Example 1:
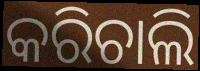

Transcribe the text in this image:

କରିଚାଲି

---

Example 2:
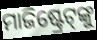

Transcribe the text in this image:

ମାଜିଷ୍ଟ୍ରେଟ୍‌ଙ୍କୁ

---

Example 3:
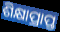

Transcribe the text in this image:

ଶିକ୍ଷାପ୍ରାପ୍ତ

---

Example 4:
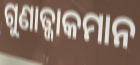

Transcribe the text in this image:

ଗୁଣାତ୍ଜାକମାନ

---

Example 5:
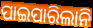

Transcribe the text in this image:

ପାଇପାରିଲାନି